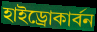
হাইড্রোকার্বন